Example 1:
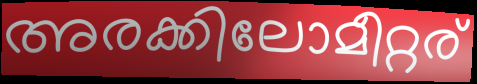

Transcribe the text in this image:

അരക്കിലോമീറ്റര്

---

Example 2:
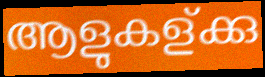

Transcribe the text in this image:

ആളുകള്ക്കു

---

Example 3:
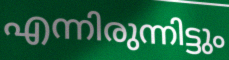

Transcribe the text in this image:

എന്നിരുന്നിട്ടും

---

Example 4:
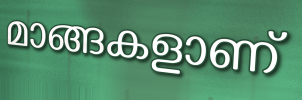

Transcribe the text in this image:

മാങ്ങകളാണ്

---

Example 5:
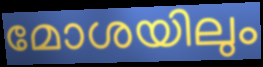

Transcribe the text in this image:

മോശയിലും